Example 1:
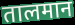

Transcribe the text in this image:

तालमान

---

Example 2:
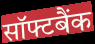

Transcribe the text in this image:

सॉफ्टबैंक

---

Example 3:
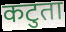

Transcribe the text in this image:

कटुता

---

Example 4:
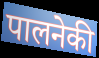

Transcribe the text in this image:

पालनेकी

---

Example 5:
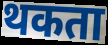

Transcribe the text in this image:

थकता